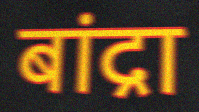
बांद्रा